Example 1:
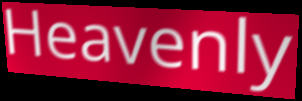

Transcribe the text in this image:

Heavenly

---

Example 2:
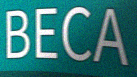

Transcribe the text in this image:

BECA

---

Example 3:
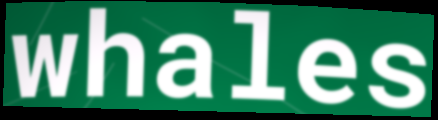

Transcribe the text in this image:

whales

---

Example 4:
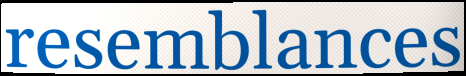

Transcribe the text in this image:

resemblances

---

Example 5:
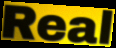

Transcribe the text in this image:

Real